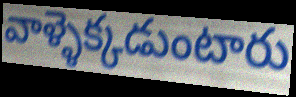
వాళ్ళెక్కడుంటారు